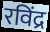
रविंद्र